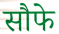
सौफे